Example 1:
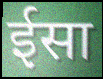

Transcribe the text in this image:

ई़सा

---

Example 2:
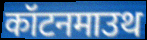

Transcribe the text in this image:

कॉटनमाउथ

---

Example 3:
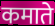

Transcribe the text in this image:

कमाते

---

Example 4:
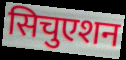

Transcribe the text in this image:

सिचुएशन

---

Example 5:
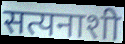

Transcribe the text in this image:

सत्यनाशी